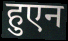
हुएन